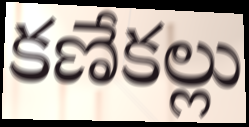
కణేకల్లు